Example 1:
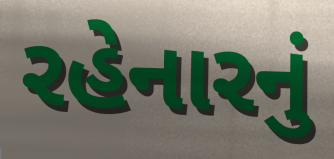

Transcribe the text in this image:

રહેનારનું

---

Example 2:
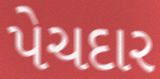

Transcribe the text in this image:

પેચદાર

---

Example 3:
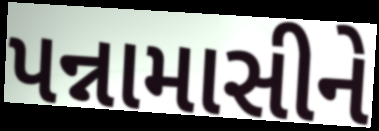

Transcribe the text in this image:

પન્નામાસીને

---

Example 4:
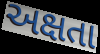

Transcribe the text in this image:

અક્ષતા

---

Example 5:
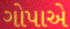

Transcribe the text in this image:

ગોપાએ